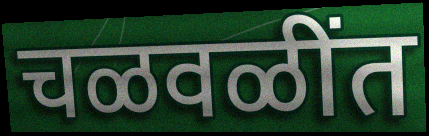
चळवळींत